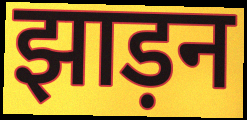
झाड़न